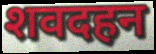
शवदहन